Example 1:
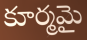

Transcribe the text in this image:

కూర్మమై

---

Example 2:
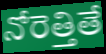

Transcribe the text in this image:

నోరెత్తితే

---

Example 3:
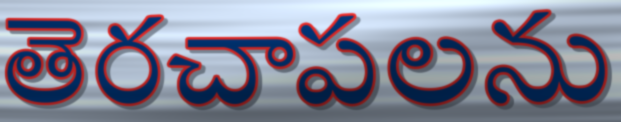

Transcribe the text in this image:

తెరచాపలను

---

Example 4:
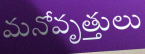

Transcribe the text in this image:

మనోవృత్తులు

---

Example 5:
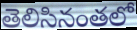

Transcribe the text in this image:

తెలిసినంతలో